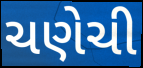
ચણેચી